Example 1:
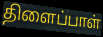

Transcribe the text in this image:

திளைப்பாள்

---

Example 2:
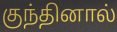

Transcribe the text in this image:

குந்தினால்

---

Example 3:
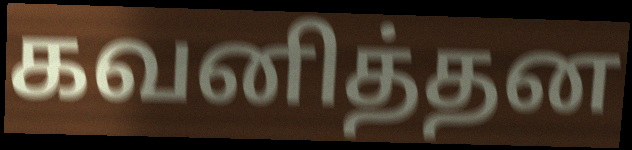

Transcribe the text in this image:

கவனித்தன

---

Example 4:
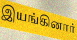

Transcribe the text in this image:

இயங்கினார்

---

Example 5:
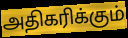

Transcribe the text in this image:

அதிகரிக்கும்